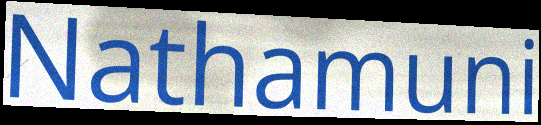
Nathamuni